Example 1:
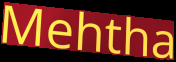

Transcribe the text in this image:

Mehtha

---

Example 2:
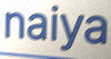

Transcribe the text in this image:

naiya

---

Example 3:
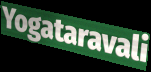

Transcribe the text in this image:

Yogataravali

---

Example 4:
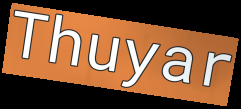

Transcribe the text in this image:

Thuyar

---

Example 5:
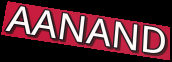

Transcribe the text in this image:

AANAND